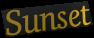
Sunset